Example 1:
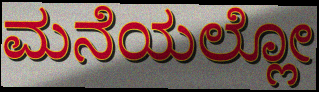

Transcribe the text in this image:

ಮನೆಯಲ್ಲೋ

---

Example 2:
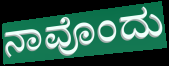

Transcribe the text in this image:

ನಾವೊಂದು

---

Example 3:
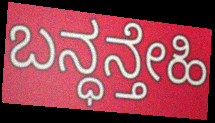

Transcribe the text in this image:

ಬನ್ಧನ್ತೇಹಿ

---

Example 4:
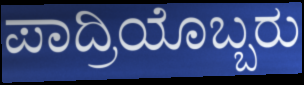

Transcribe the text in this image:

ಪಾದ್ರಿಯೊಬ್ಬರು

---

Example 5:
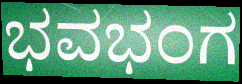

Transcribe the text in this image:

ಭವಭಂಗ